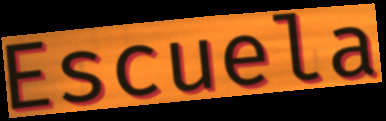
Escuela